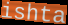
ishta